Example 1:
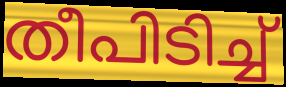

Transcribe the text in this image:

തീപിടിച്ച്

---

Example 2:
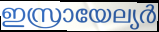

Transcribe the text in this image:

ഇസ്രായേല്യർ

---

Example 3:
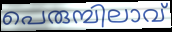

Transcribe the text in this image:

പെരുമ്പിലാവ്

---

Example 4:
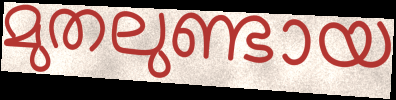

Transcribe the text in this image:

മുതലുണ്ടായ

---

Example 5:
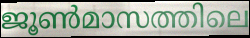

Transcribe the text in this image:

ജൂൺമാസത്തിലെ